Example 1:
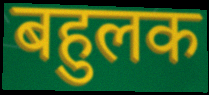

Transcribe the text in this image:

बहुलक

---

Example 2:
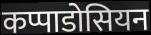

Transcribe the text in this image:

कप्पाडोसियन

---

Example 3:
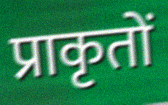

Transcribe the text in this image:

प्राकृतों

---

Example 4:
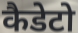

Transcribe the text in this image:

कैडेटो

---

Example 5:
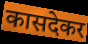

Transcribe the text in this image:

कासदेकर